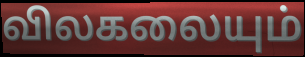
விலகலையும்